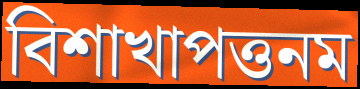
বিশাখাপত্তনম